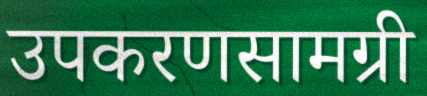
उपकरणसामग्री